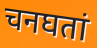
चनघतां